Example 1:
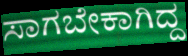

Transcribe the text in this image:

ಸಾಗಬೇಕಾಗಿದ್ದ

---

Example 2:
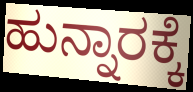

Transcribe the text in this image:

ಹುನ್ನಾರಕ್ಕೆ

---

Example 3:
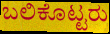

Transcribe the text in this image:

ಬಲಿಕೊಟ್ಟರು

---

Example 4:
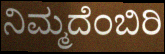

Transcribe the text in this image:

ನಿಮ್ಮದೆಂಬಿರಿ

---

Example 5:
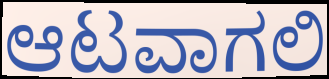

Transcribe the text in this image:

ಆಟವಾಗಲಿ